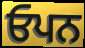
ਓਪਨ